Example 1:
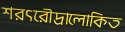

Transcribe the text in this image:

শরৎরৌদ্রালোকিত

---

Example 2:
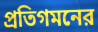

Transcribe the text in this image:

প্রতিগমনের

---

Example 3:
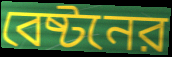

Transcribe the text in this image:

বেষ্টনের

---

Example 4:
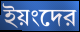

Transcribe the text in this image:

ইয়ংদের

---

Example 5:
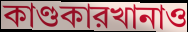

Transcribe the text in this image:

কাণ্ডকারখানাও